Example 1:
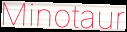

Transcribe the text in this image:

Minotaur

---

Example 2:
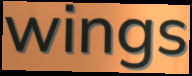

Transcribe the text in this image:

wings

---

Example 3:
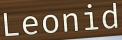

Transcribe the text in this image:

Leonid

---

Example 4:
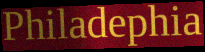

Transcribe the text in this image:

Philadephia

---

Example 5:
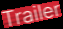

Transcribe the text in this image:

Trailer